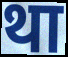
था